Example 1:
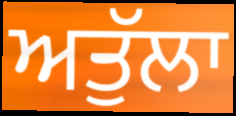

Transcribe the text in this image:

ਅਤੁੱਲਾ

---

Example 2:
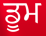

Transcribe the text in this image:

ਡੂਮ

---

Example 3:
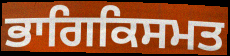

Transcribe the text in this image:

ਭਾਗਿਕਿਸਮਤ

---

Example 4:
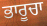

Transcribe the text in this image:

ਭਾਰੂਚਾ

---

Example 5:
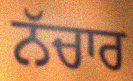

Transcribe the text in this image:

ਨੱਚਾਰ